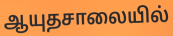
ஆயுதசாலையில்